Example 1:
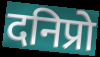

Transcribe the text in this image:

दनिप्रो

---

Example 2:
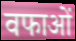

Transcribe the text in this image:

वफाओं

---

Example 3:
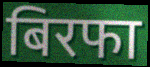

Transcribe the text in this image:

बिरफा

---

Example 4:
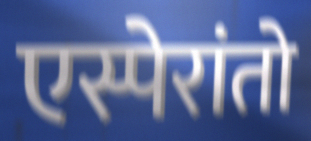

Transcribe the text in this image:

एस्पेरांतो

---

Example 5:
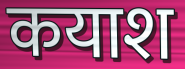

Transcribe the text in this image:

कयाश